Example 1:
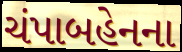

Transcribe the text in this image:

ચંપાબહેનના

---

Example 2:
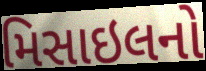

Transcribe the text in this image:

મિસાઇલનો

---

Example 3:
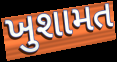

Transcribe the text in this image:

ખુશામત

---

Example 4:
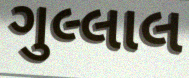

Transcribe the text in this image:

ગુલ્લાલ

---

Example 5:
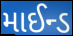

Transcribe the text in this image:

માઈન્ડ